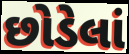
છોડેલાં